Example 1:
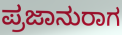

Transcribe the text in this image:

ಪ್ರಜಾನುರಾಗ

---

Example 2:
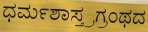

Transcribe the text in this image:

ಧರ್ಮಶಾಸ್ತ್ರಗ್ರಂಥದ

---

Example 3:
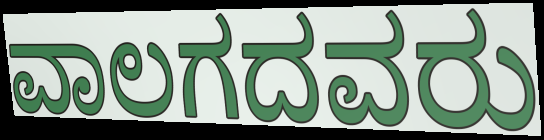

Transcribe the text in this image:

ವಾಲಗದವರು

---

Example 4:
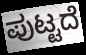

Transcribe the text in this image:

ಪುಟ್ಟದೆ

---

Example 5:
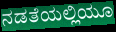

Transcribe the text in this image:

ನಡತೆಯಲ್ಲಿಯೂ